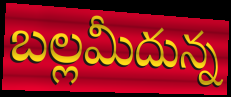
బల్లమీదున్న